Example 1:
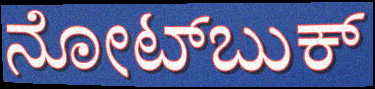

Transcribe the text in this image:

ನೋಟ್‌ಬುಕ್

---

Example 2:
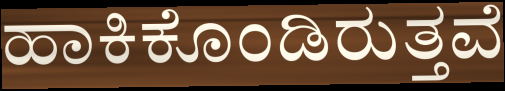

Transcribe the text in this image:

ಹಾಕಿಕೊಂಡಿರುತ್ತವೆ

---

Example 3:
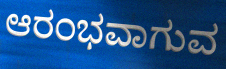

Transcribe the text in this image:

ಆರಂಭವಾಗುವ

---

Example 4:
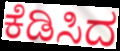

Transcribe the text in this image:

ಕೆಡಿಸಿದ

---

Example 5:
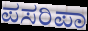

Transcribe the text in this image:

ಪಸರಿಪಾ